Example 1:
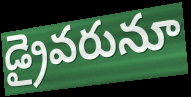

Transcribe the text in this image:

డ్రైవరునూ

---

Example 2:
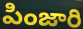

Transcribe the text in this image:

పింజారి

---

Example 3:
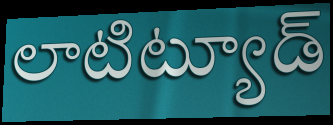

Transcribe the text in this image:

లాటిట్యూడ్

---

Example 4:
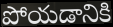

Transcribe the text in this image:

పోయడానికి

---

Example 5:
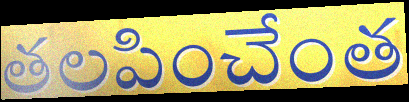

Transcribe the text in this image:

తలపించేంత